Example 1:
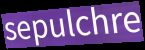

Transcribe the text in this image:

sepulchre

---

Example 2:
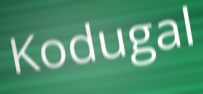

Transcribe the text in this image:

Kodugal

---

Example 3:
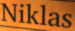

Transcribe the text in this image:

Niklas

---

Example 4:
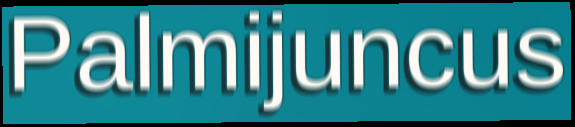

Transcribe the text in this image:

Palmijuncus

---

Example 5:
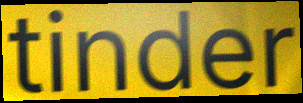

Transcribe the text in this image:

tinder